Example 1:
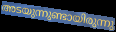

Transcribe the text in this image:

അടയുന്നുണ്ടായിരുന്നു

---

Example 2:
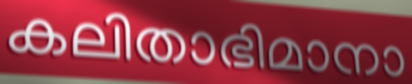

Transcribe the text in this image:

കലിതാഭിമാനാ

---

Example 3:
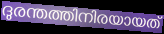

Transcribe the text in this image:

ദുരന്തത്തിനിരയായത്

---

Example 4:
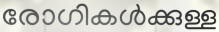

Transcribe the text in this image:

രോഗികൾക്കുള്ള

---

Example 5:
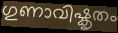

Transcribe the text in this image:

ഗുണാവിഷ്കൃതം